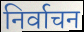
निर्वाचन